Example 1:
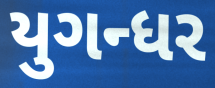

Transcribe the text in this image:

યુગન્ધર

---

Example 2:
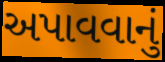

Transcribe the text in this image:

અપાવવાનું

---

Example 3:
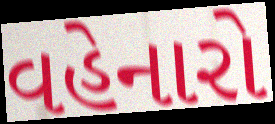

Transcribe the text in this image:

વહેનારો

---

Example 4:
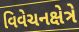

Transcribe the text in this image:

વિવેચનક્ષેત્રે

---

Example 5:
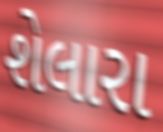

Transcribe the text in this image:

શેલારા